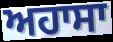
ਅਹਾਸਾ